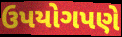
ઉપયોગપણે